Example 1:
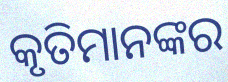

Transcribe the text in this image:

କୃତିମାନଙ୍କର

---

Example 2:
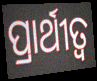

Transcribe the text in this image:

ପ୍ରାର୍ଥୀତ୍ଵ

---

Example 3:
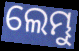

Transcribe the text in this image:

ଲେମ୍ଭୁ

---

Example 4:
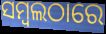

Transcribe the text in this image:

ସମ୍ବଲଠାରେ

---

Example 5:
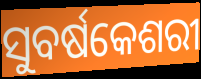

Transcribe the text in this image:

ସୁବର୍ଷକେଶରୀ